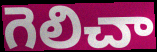
గెలిచా